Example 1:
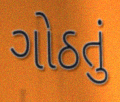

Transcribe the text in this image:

ગોઠતું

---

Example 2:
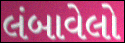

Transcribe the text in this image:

લંબાવેલો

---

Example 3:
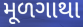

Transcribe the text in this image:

મૂળગાથા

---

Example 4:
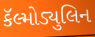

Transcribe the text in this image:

કૅલ્મોડ્યુલિન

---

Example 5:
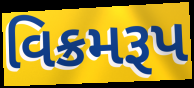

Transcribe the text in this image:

વિક્રમરૂપ